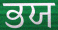
ਭਯ